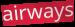
airways